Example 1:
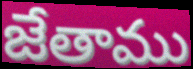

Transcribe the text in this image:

జేతాము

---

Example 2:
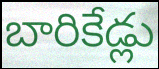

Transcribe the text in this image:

బారికేడ్లు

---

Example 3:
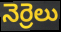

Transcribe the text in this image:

నెర్రెలు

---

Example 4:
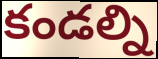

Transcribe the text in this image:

కండల్ని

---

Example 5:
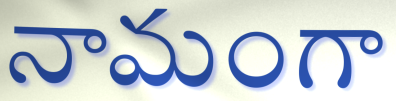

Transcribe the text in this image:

నామంగా